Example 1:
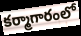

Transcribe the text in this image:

కర్మాగారంలో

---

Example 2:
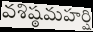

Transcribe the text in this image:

వశిష్ఠమహర్షి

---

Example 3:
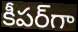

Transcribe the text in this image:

కీపర్‌గా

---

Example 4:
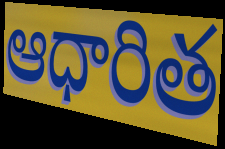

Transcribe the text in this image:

ఆధారిత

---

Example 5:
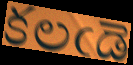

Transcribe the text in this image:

కలఁడె